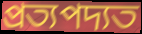
প্রত্যপদ্যত